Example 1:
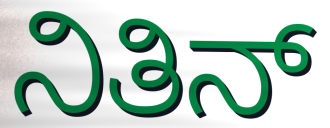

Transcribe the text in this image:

ನಿತಿನ್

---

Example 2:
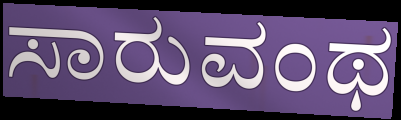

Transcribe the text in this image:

ಸಾರುವಂಥ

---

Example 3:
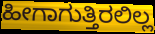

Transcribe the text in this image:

ಹೀಗಾಗುತ್ತಿರಲಿಲ್ಲ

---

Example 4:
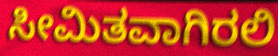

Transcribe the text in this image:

ಸೀಮಿತವಾಗಿರಲಿ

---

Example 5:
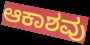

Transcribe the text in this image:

ಆಕಾಶವು